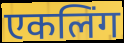
एकलिंग